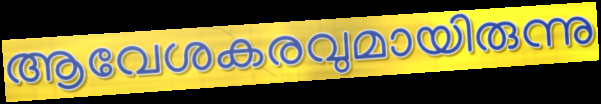
ആവേശകരവുമായിരുന്നു